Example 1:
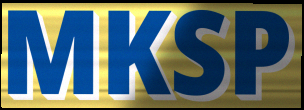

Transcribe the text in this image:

MKSP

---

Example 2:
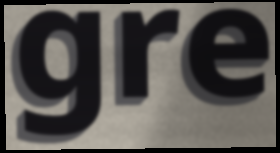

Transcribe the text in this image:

gre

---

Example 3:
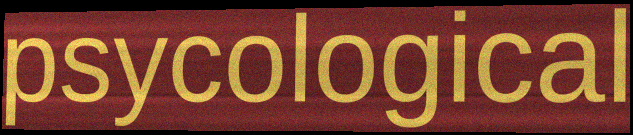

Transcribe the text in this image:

psycological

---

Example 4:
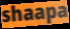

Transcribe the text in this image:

shaapa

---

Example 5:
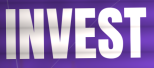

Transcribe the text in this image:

INVEST